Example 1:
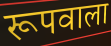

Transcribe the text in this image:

रूपवाला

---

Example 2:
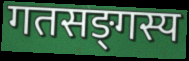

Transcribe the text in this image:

गतसङ्गस्य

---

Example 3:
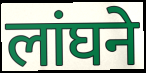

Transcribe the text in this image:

लांघने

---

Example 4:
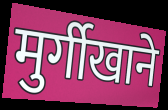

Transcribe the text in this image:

मुर्गीखाने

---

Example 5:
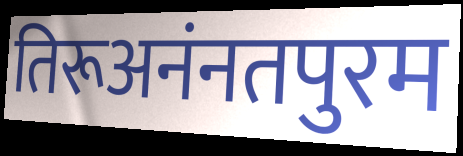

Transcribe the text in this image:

तिरूअनंनतपुरम